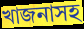
খাজনাসহ